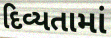
દિવ્યતામાં